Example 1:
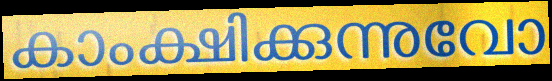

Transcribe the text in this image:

കാംക്ഷിക്കുന്നുവോ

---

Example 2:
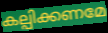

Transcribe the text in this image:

കല്പിക്കണമേ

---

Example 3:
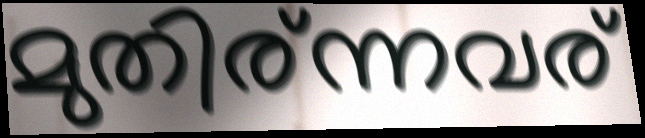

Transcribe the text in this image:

മുതിര്ന്നവര്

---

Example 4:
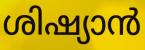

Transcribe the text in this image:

ശിഷ്യാൻ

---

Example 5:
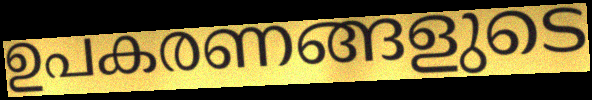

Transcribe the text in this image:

ഉപകരണങ്ങളുടെ